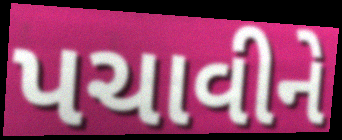
પચાવીને